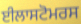
ਈਲਾਸਟੋਮਰਸ